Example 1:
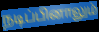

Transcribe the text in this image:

நடிப்பினாலும்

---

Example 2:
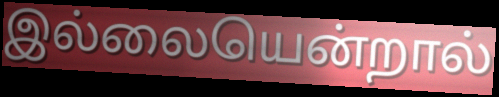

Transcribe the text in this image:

இல்லையென்றால்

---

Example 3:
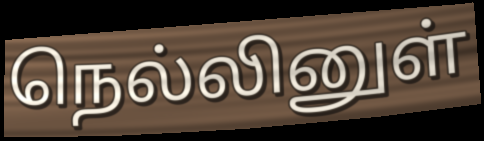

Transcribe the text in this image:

நெல்லினுள்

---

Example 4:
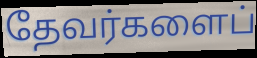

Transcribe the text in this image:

தேவர்களைப்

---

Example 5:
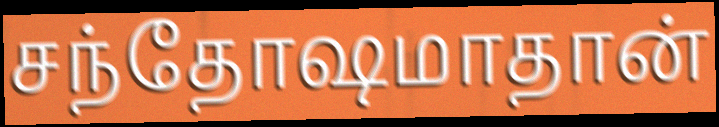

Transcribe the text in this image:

சந்தோஷமாதான்